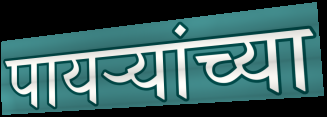
पायर्‍यांच्या